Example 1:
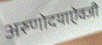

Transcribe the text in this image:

अरुणोदयाऐवजी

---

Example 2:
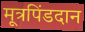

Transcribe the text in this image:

मूत्रपिंडदान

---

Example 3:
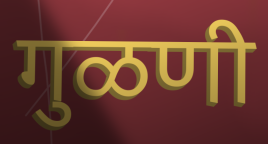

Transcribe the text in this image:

गुळणी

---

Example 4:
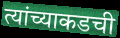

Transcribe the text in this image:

त्यांच्याकडची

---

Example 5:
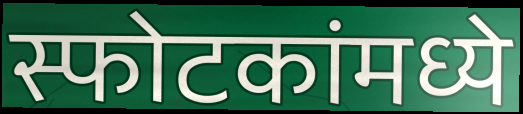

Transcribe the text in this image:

स्फोटकांमध्ये